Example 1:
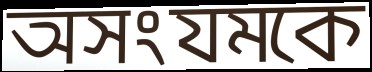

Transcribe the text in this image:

অসংযমকে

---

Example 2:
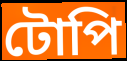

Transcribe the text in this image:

টোপি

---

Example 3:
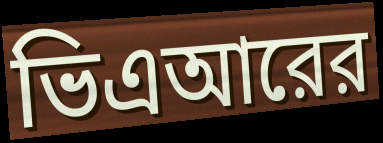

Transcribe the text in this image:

ভিএআরের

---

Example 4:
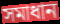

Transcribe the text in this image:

সমাধান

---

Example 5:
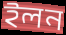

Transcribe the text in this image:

ইলন